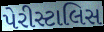
પેરીસ્ટાલિસ